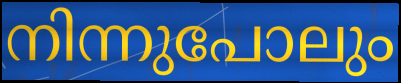
നിന്നുപോലും